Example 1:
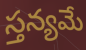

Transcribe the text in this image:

స్తన్యమే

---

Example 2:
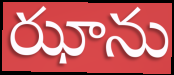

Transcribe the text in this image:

ఝాను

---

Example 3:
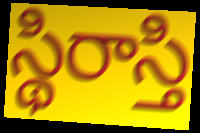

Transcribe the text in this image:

స్థిరాస్తి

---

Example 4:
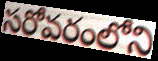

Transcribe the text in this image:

సరోవరంలోని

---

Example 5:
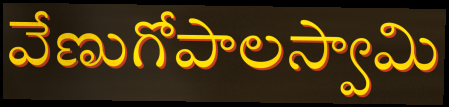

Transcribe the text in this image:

వేణుగోపాలస్వామి